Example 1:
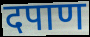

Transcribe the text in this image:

दपाण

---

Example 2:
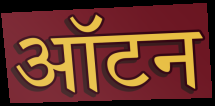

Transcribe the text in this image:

ऑटन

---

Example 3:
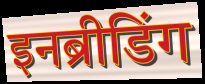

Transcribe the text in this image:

इनब्रीडिंग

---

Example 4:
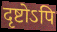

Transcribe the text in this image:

दृष्टोऽपि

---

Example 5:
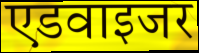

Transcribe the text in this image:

एडवाइजर